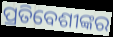
ପ୍ରତିବେଶୀଙ୍କର